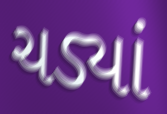
ચડ્યાં